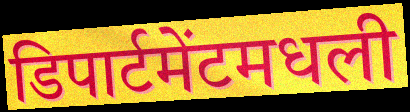
डिपार्टमेंटमधली